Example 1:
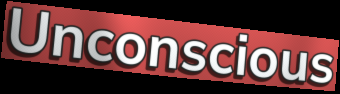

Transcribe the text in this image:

Unconscious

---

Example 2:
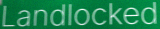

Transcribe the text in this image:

Landlocked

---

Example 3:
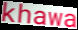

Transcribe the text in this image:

khawa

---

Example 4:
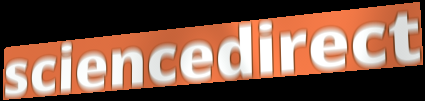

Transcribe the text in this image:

sciencedirect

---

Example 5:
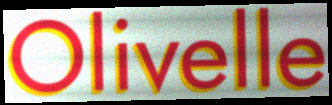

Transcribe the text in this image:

Olivelle